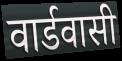
वार्डवासी